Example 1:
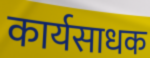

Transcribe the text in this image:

कार्यसाधक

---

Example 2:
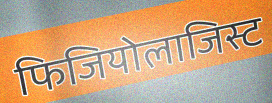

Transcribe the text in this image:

फिजियोलाजिस्ट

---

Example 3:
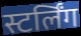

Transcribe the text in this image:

स्‍टर्लिंग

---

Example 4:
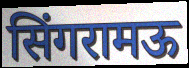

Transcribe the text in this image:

सिंगरामऊ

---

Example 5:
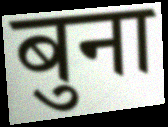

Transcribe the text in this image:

बुना